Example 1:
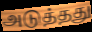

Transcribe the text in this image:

அடுத்தது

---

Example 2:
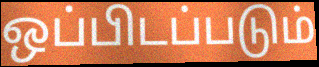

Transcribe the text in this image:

ஒப்பிடப்படும்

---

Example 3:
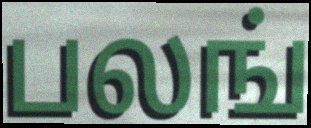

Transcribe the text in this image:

பலங்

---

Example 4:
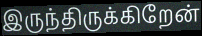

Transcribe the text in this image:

இருந்திருக்கிறேன்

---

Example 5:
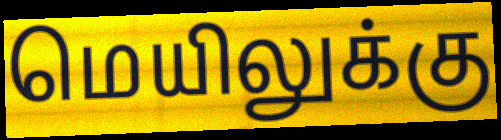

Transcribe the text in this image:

மெயிலுக்கு